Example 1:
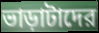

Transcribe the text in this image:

ভাড়াটাদের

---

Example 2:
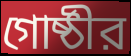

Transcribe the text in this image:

গোষ্ঠীর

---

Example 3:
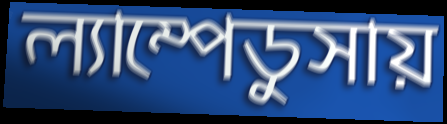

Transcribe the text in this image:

ল্যাম্পেডুসায়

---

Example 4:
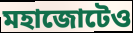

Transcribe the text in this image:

মহাজোটেও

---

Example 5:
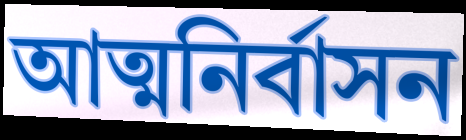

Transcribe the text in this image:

আত্মনির্বাসন